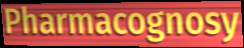
Pharmacognosy